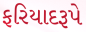
ફરિયાદરૂપે